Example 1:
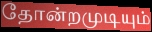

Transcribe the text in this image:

தோன்றமுடியும்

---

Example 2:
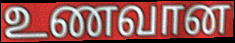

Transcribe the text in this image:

உணவான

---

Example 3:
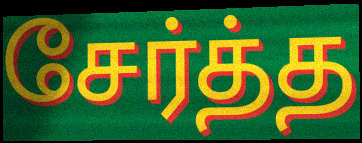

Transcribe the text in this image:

சேர்த்த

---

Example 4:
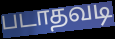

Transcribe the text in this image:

படாதவடி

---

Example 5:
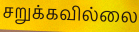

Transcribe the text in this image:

சறுக்கவில்லை